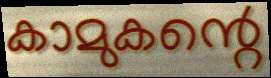
കാമുകന്റെ